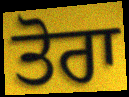
ਤੋਰਾ